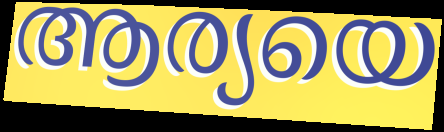
ആര്യയെ